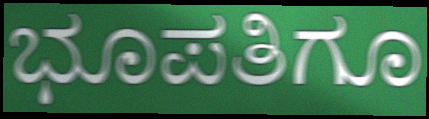
ಭೂಪತಿಗೂ